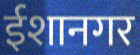
ईशानगर